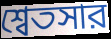
শ্বেতসার